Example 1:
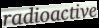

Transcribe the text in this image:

radioactive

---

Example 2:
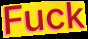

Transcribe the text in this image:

Fuck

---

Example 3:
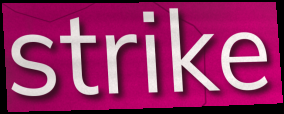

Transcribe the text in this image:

strike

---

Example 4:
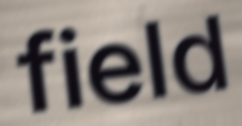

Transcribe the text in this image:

field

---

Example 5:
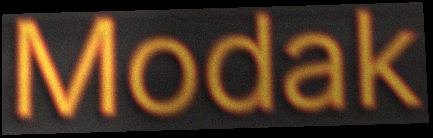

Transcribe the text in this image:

Modak